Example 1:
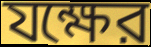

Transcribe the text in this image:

যক্ষের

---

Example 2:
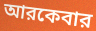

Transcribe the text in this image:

আরকেবার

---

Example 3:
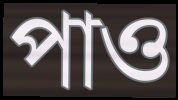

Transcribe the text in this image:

পাও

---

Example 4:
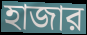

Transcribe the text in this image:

হাজার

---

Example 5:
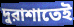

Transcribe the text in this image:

দুরাশাতেই